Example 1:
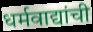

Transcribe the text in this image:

धर्मवाद्यांची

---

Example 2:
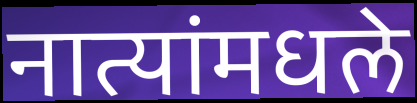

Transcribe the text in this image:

नात्यांमधले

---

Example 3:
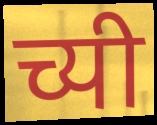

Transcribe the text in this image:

च्यी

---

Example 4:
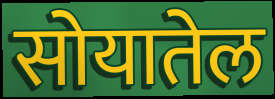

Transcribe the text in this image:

सोयातेल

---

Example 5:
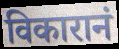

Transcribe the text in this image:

विकारानं